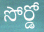
సోర్డో